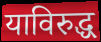
याविरुद्ध